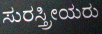
ಸುರಸ್ತ್ರೀಯರು